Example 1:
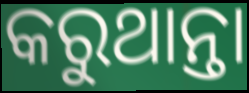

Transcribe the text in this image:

କରୁଥାନ୍ତା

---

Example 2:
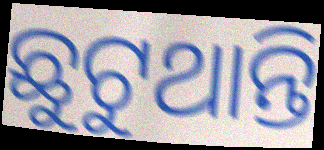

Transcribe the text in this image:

ଛୁଟୁଥାନ୍ତି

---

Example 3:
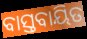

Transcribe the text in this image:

ବାସ୍ତବାୟିତ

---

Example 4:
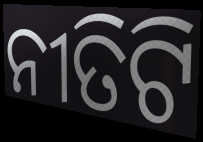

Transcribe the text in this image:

ନୀତିଟି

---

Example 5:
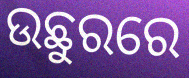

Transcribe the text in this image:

ଉଛୁରରେ